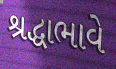
શ્રદ્ધાભાવે